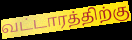
வட்டாரத்திற்கு